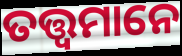
ତତ୍ତ୍ବମାନେ